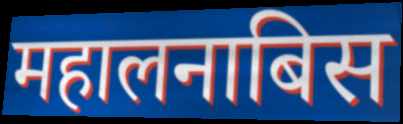
महालनाबिस